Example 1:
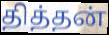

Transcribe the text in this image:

தித்தன்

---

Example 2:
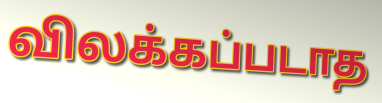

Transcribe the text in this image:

விலக்கப்படாத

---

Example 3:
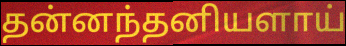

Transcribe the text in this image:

தன்னந்தனியளாய்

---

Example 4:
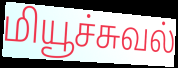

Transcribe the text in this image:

மியூச்சுவல்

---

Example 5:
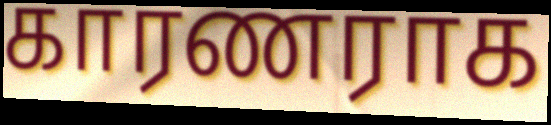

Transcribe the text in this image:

காரணராக